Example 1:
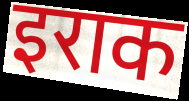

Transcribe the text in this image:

इराक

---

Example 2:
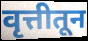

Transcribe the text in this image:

वृत्तीतून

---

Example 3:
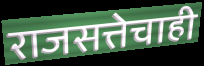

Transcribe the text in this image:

राजसत्तेचाही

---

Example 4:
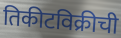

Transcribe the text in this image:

तिकीटविक्रीची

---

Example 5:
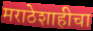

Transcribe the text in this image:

मराठेशाहीचा